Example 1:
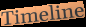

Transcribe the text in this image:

Timeline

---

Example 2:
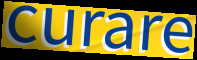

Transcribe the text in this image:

curare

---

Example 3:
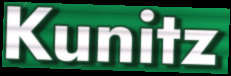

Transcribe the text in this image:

Kunitz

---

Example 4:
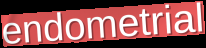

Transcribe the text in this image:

endometrial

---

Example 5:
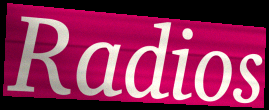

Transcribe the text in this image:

Radios